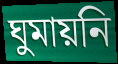
ঘুমায়নি